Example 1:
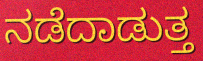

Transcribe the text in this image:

ನಡೆದಾಡುತ್ತ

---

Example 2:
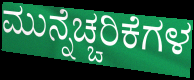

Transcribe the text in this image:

ಮುನ್ನೆಚ್ಚರಿಕೆಗಳ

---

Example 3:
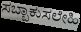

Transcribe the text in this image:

ಸಬ್ಬಾಕುಸಲೇಹಿ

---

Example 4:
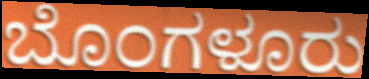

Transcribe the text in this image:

ಬೊಂಗಳೂರು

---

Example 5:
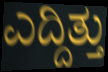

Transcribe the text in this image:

ಎದ್ದಿತ್ತು